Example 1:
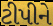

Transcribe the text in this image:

ટીપીને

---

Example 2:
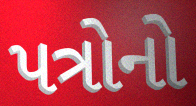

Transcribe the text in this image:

પત્રોનો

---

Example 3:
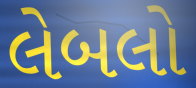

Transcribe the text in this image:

લેબલો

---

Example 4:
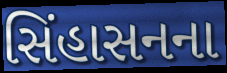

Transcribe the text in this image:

સિંહાસનના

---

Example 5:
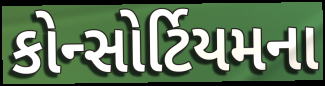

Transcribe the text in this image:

કોન્સોર્ટિયમના